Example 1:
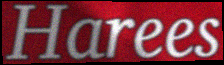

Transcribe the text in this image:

Harees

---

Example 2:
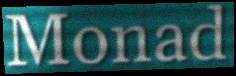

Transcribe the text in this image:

Monad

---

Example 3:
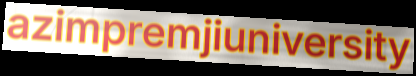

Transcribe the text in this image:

azimpremjiuniversity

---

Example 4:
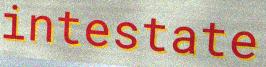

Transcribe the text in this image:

intestate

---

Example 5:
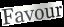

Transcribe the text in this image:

Favour